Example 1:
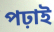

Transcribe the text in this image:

পঢ়াই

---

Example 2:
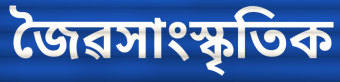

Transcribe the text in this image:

জৈৱসাংস্কৃতিক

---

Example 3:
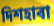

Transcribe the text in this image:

দিশহাৰা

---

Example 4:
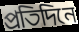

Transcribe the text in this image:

প্ৰতিদিনে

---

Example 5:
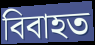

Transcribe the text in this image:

বিবাহত